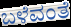
ಬಳೆವಂತೆ